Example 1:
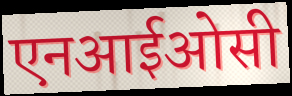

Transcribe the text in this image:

एनआईओसी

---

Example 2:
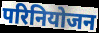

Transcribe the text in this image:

परिनियोजन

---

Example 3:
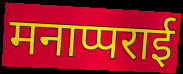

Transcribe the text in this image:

मनाप्पराई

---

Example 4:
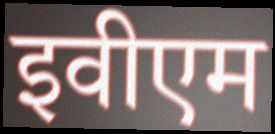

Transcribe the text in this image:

इवीएम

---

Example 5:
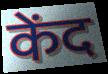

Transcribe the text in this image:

केंद